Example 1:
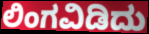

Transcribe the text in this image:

ಲಿಂಗವಿಡಿದು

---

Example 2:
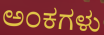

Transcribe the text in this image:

ಅಂಕಗಳು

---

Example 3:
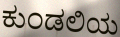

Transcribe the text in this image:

ಕುಂಡಲಿಯ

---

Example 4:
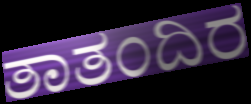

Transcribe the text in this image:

ತಾತಂದಿರ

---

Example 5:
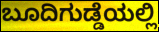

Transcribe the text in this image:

ಬೂದಿಗುಡ್ಡೆಯಲ್ಲಿ